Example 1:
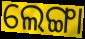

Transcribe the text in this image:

ଲେଙ୍ଗା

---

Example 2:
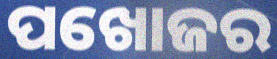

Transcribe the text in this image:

ପଖୋଜର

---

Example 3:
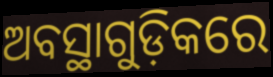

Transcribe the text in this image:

ଅବସ୍ଥାଗୁଡ଼ିକରେ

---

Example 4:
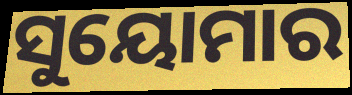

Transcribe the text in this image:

ସୁୟୋମାର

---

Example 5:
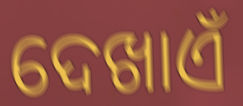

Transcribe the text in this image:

ଦେଖାଏଁ